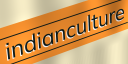
indianculture